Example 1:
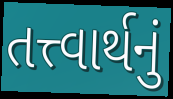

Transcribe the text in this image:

તત્ત્વાર્થનું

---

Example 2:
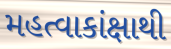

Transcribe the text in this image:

મહત્વાકાંક્ષાથી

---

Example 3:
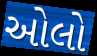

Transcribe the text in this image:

ઓલો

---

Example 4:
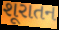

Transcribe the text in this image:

શૂરાતન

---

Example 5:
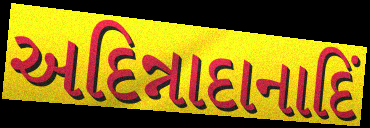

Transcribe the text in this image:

અદિન્નાદાનાદિં